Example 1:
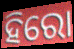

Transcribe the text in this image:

ହିରୋ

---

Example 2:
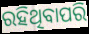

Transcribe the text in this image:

ରହିଥିବାପରି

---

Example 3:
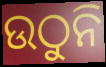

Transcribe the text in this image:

ଉଠୁନି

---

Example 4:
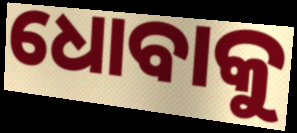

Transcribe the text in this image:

ଧୋବାକୁ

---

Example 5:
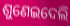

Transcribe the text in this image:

ଶୁଣେଇଦେଲି